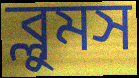
ব্লুমস